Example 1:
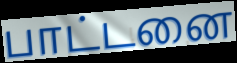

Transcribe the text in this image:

பாட்டனை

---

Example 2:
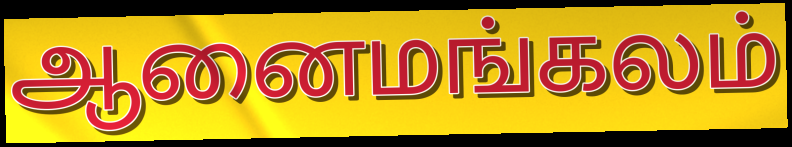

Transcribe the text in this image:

ஆனைமங்கலம்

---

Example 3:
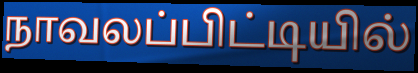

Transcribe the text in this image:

நாவலப்பிட்டியில்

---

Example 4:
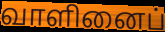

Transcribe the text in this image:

வாளினைப்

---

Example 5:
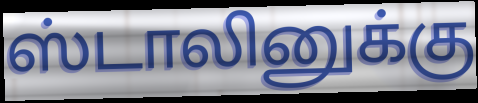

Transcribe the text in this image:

ஸ்டாலினுக்கு